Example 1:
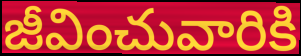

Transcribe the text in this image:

జీవించువారికి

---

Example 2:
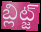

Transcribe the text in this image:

బ్లిట్జ్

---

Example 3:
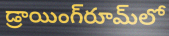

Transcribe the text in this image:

డ్రాయింగ్‌రూమ్‌లో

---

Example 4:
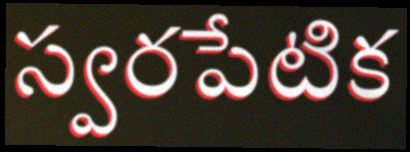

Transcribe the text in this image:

స్వరపేటిక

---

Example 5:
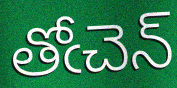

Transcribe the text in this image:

తోఁచెన్